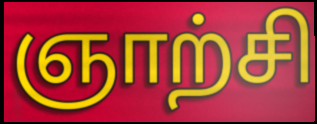
ஞாற்சி